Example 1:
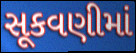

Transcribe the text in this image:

સૂકવણીમાં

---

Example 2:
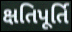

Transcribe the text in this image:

ક્ષતિપૂર્તિ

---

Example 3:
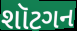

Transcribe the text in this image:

શૉટગન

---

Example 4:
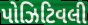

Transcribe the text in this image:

પોઝિટિવલી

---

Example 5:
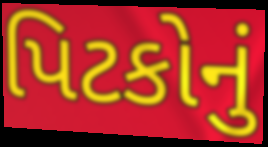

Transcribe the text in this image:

પિટકોનું